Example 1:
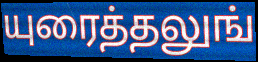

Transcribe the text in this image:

யுரைத்தலுங்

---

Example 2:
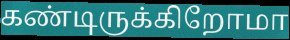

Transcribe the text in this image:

கண்டிருக்கிறோமா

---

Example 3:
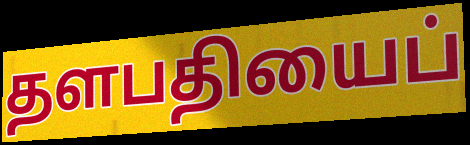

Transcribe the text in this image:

தளபதியைப்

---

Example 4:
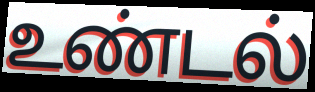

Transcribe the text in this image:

உண்டல்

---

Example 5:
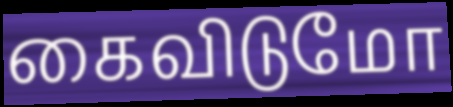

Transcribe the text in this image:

கைவிடுமோ